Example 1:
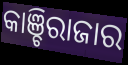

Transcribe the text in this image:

କାଞ୍ଚିରାଜାର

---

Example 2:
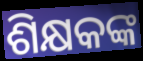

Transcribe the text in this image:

ଶିକ୍ଷକଙ୍କ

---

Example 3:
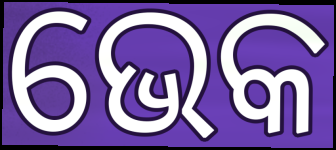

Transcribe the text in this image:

ଭେକ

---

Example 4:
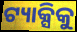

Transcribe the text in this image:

ଟ୍ୟାକ୍ସିକୁ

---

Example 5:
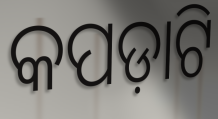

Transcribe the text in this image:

କପଡ଼ାଟି